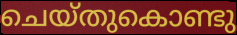
ചെയ്തുകൊണ്ടു